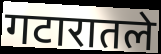
गटारातले